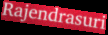
Rajendrasuri